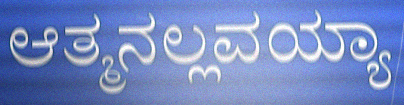
ಆತ್ಮನಲ್ಲವಯ್ಯಾ